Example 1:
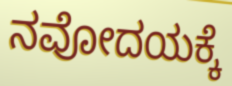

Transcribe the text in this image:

ನವೋದಯಕ್ಕೆ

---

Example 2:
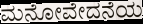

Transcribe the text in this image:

ಮನೋವೇದನೆಯ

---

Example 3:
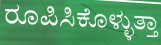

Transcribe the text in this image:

ರೂಪಿಸಿಕೊಳ್ಳುತ್ತಾ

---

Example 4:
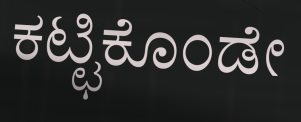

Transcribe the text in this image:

ಕಟ್ಟಿಕೊಂಡೇ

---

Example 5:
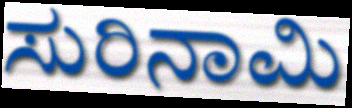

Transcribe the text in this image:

ಸುರಿನಾಮಿ